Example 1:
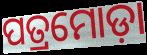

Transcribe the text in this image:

ପତ୍ରମୋଡ଼ା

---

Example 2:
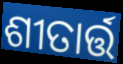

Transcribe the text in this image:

ଶୀତାର୍ତ୍ତ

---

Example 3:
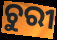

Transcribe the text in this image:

ଚୁରୀ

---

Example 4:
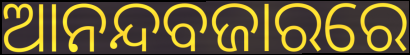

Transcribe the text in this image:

ଆନନ୍ଦବଜାରରେ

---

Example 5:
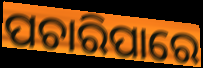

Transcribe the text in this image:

ପଚାରିପାରେ